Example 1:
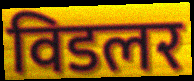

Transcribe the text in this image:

विडलर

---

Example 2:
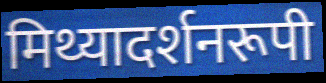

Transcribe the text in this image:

मिथ्यादर्शनरूपी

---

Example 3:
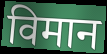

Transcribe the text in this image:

विमान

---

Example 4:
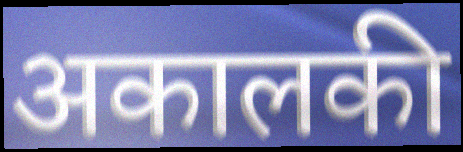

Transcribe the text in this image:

अकालकी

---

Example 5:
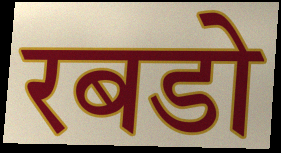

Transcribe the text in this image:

रबडो